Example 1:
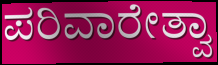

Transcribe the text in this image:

ಪರಿವಾರೇತ್ವಾ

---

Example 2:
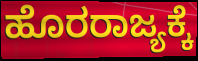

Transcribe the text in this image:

ಹೊರರಾಜ್ಯಕ್ಕೆ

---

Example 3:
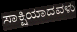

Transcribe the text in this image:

ಸಾಕ್ಷಿಯಾದವಳು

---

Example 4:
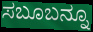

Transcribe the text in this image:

ಸಬೂಬನ್ನೂ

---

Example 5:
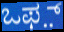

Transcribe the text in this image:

ಒಫ಼್